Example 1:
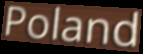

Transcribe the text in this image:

Poland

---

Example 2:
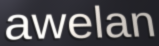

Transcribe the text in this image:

awelan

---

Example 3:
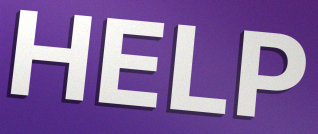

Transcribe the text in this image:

HELP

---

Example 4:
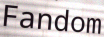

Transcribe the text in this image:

Fandom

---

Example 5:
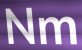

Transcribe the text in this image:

Nm